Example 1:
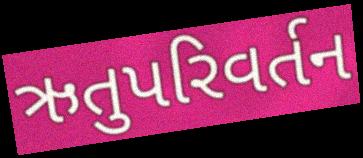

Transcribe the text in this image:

ઋતુપરિવર્તન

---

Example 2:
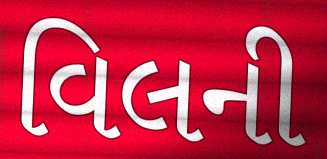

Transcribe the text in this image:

વિલની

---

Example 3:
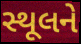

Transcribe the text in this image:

સ્થૂલને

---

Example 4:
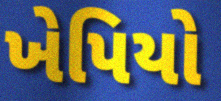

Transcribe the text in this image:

ખેપિયો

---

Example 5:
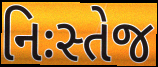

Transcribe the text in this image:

નિઃસ્તેજ